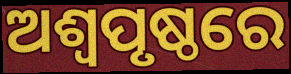
ଅଶ୍ୱପୃଷ୍ଠରେ